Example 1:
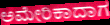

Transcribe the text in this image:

ಅಮೇರಿಕಾದಾಗ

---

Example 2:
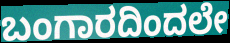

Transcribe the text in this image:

ಬಂಗಾರದಿಂದಲೇ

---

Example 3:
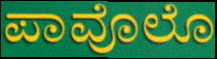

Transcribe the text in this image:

ಪಾವೊಲೊ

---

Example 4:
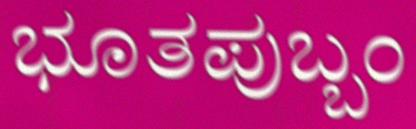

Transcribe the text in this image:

ಭೂತಪುಬ್ಬಂ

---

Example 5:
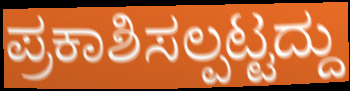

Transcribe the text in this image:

ಪ್ರಕಾಶಿಸಲ್ಪಟ್ಟದ್ದು